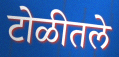
टोळीतले